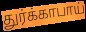
துர்க்காபாய்